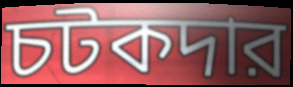
চটকদার